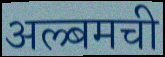
अल्बमची